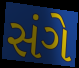
સંગે